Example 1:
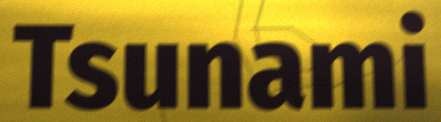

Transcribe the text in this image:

Tsunami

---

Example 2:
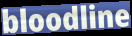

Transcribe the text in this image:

bloodline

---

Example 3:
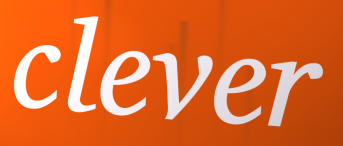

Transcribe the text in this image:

clever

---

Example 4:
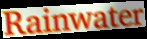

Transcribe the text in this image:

Rainwater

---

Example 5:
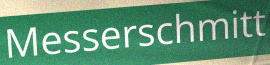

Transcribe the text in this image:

Messerschmitt